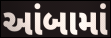
આંબામાં